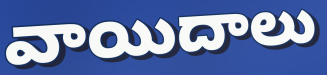
వాయిదాలు